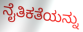
ನೈತಿಕತೆಯನ್ನು